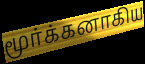
மூர்க்கனாகிய